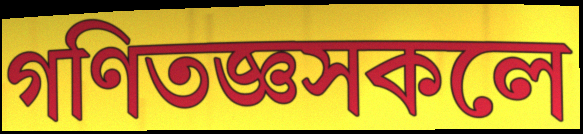
গণিতজ্ঞসকলে